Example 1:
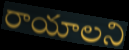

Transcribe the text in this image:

రాయాలని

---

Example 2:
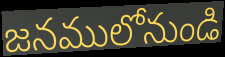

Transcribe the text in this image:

జనములోనుండి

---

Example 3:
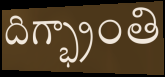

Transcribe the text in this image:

దిగ్భ్రాంతి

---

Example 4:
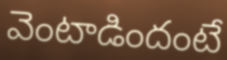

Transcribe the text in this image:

వెంటాడిందంటే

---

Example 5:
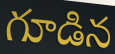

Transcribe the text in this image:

గూడిన